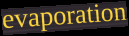
evaporation